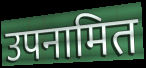
उपनामित